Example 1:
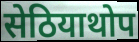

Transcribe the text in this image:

सेठियाथोप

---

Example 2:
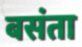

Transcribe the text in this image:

बसंता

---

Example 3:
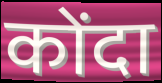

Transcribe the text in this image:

कोंदा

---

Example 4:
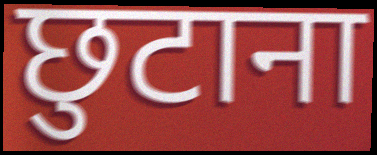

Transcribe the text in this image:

छुटाना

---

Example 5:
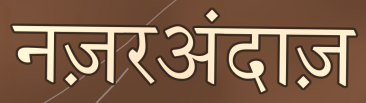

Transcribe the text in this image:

नज़रअंदाज़